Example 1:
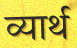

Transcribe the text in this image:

व्यार्थ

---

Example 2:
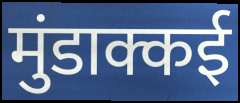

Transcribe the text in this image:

मुंडाक्कई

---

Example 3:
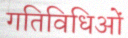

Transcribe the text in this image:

गतिविधिओं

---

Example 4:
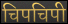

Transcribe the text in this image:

चिपचिपी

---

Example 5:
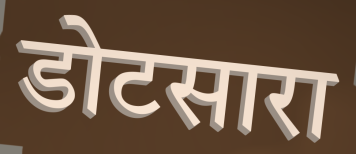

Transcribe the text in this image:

डोटसारा